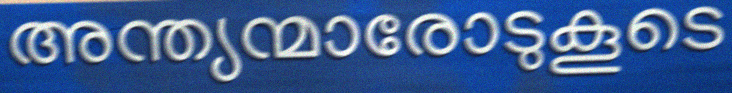
അന്ത്യന്മാരോടുകൂടെ